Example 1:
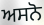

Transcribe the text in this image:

ਅਸਨੋ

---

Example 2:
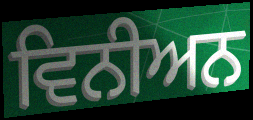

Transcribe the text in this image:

ਵਿਨੀਅਨ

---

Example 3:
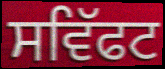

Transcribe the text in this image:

ਸਵਿੱਫਟ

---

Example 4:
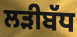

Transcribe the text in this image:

ਲੜੀਬੱਧ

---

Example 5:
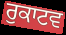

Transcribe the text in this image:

ਰੁਕਾਟਵ